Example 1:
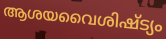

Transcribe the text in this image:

ആശയവൈശിഷ്ട്യം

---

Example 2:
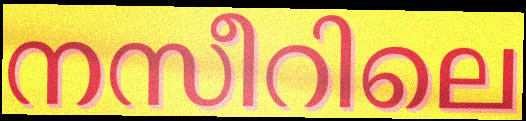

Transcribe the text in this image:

നസീറിലെ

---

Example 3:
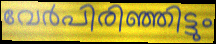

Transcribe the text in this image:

വേർപിരിഞ്ഞിട്ടും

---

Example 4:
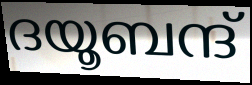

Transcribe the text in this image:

ദയൂബന്ദ്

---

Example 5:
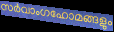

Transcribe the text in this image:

സർവാംഗഹോമങ്ങളും